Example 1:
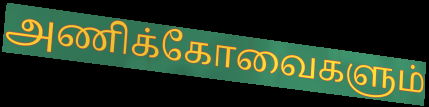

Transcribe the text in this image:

அணிக்கோவைகளும்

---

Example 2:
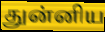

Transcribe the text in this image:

துன்னிய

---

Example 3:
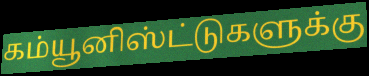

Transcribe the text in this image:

கம்யூனிஸ்ட்டுகளுக்கு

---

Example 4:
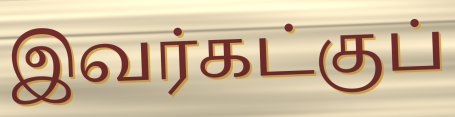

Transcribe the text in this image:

இவர்கட்குப்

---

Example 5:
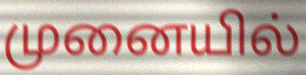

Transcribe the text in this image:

முனையில்